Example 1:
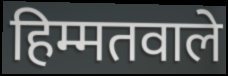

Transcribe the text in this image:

हिम्मतवाले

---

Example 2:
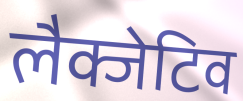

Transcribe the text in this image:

लैक्जेटिव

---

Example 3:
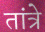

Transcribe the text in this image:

तांत्रे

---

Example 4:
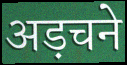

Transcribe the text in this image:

अड़चने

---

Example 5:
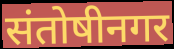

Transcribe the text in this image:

संतोषीनगर